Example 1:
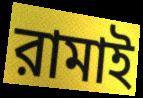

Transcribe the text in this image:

রামাই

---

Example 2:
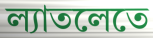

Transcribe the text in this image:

ল্যাতলেতে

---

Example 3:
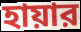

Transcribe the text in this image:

হায়ার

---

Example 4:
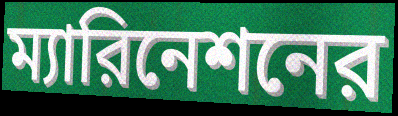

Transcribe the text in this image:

ম্যারিনেশনের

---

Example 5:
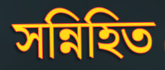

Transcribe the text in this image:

সন্নিহিত